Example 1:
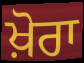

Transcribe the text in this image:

ਖ਼ੋਰਾ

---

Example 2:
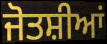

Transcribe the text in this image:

ਜੋਤਸ਼ੀਆਂ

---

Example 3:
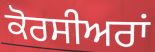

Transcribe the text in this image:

ਕੋਰਸੀਅਰਾਂ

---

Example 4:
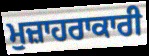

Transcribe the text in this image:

ਮੁਜ਼ਾਹਰਾਕਾਰੀ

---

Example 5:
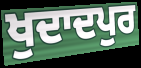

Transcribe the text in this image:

ਖੁਦਾਦਪੁਰ